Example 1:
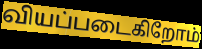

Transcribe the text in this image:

வியப்படைகிறோம்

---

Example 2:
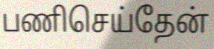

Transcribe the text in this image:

பணிசெய்தேன்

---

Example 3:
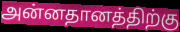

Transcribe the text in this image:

அன்னதானத்திற்கு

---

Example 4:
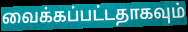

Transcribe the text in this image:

வைக்கப்பட்டதாகவும்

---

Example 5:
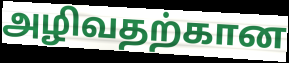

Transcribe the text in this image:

அழிவதற்கான